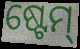
ଷ୍ଟେମ୍